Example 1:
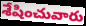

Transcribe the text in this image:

శేషించువారు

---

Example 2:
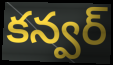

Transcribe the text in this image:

కన్వర్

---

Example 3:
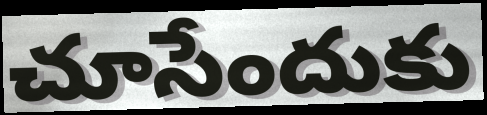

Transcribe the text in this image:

చూసేందుకు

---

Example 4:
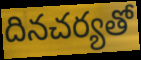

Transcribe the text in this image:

దినచర్యతో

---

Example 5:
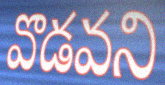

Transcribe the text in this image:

వొడవని